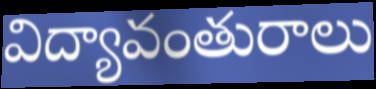
విద్యావంతురాలు